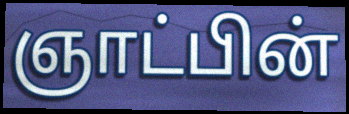
ஞாட்பின்